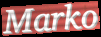
Marko